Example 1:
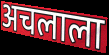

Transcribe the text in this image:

अचलाला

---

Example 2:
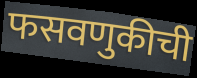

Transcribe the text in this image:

फसवणुकीची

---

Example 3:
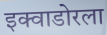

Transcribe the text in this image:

इक्वाडोरला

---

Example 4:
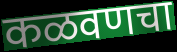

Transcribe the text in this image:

कळवणचा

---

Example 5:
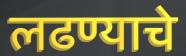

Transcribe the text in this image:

लढण्याचे